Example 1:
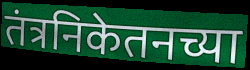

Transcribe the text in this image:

तंत्रनिकेतनच्या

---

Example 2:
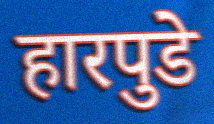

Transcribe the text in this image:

हारपुडे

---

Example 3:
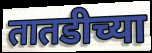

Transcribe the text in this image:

तातडीच्या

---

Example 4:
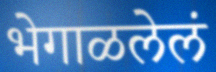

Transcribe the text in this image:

भेगाळलेलं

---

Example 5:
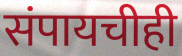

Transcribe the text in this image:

संपायचीही